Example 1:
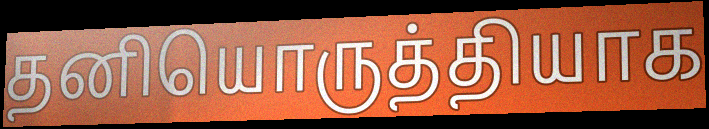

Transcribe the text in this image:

தனியொருத்தியாக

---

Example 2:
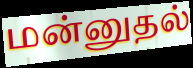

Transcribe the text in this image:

மன்னுதல்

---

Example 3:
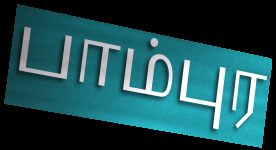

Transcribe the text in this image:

பாம்புர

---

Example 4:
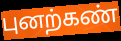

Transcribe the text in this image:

புனற்கண்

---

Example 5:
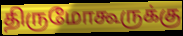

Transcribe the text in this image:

திருமோகூருக்கு